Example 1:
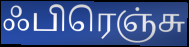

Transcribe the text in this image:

ஃபிரெஞ்சு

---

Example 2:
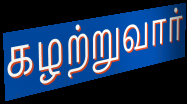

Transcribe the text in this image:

கழற்றுவார்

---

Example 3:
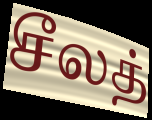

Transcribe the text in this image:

சீலத்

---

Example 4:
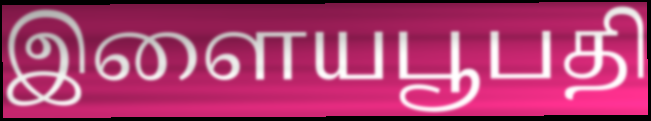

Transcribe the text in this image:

இளையபூபதி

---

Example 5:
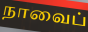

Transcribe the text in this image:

நாவைப்